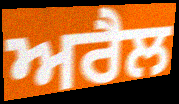
ਅਰੈਲ